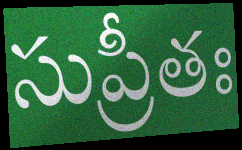
సుప్రీతః